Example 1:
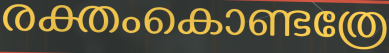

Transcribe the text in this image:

രക്തംകൊണ്ടത്രേ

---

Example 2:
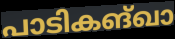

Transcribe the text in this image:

പാടികങ്ഖാ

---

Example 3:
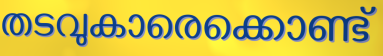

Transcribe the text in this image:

തടവുകാരെക്കൊണ്ട്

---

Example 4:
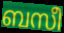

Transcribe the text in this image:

ബസീ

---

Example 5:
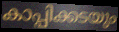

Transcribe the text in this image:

കാപ്പിക്കടയും